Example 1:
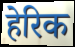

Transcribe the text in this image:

हेरिक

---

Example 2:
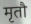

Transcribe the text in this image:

मृतौ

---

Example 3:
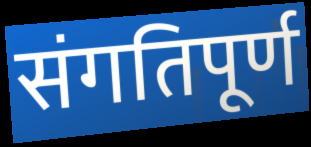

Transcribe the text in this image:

संगतिपूर्ण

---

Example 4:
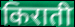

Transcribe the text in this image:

किराती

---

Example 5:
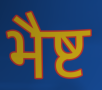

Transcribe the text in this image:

भैष्ट